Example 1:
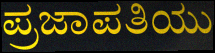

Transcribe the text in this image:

ಪ್ರಜಾಪತಿಯು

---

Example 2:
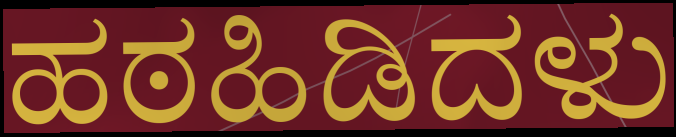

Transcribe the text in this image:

ಹಠಹಿಡಿದಳು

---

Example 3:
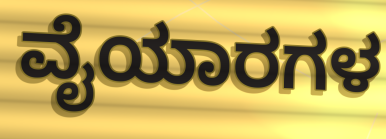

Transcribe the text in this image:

ವೈಯಾರಗಳ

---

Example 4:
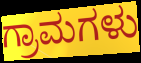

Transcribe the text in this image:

ಗ್ರಾಮಗಳು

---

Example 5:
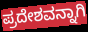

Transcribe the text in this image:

ಪ್ರದೇಶವನ್ನಾಗಿ